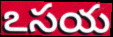
ఽసయ